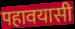
पहावयासी